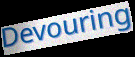
Devouring